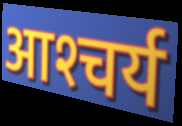
आश्चर्य